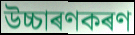
উচ্চাৰণকৰণ